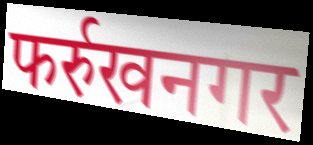
फर्रुखनगर